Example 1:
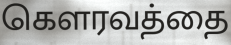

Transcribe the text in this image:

கௌரவத்தை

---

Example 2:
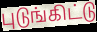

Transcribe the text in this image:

புடுங்கிட்டு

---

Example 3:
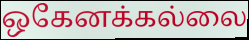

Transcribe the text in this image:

ஒகேனக்கல்லை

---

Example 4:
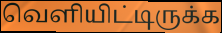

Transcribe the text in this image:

வெளியிட்டிருக்க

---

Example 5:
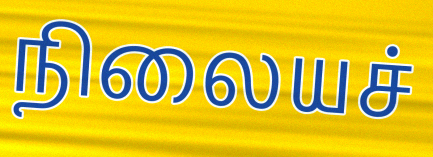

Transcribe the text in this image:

நிலையச்